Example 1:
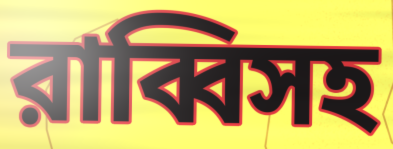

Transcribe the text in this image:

রাব্বিসহ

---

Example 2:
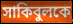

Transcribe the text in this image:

সাকিবুলকে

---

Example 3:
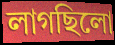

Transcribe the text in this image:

লাগছিলো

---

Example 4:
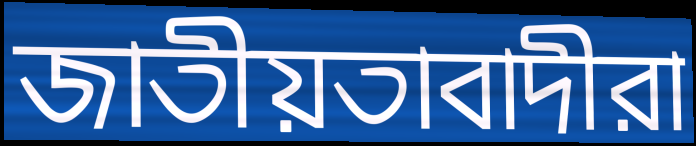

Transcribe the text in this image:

জাতীয়তাবাদীরা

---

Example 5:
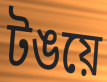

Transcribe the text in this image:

টঙয়ে